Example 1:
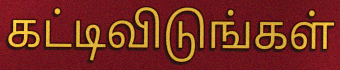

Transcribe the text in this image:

கட்டிவிடுங்கள்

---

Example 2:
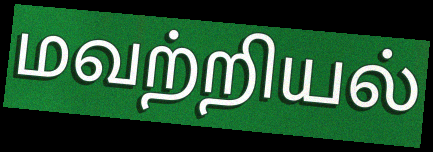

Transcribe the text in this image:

மவற்றியல்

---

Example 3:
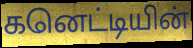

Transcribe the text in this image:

கனெட்டியின்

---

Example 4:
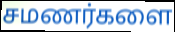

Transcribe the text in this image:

சமணர்களை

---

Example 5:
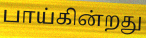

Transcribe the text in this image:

பாய்கின்றது